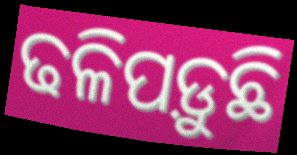
ଢଳିପଡ଼ୁଛି